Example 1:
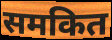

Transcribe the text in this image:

समकित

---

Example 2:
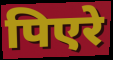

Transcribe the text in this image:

पिएरे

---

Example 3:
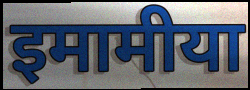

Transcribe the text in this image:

इमामीया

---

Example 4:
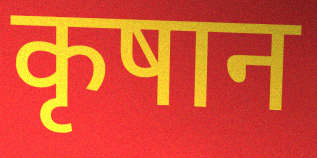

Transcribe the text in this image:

कृषान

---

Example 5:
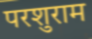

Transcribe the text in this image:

परशुराम